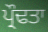
ਪ੍ਰੌਢਤਾ